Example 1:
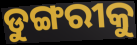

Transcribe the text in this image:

ଡୁଙ୍ଗରୀକୁ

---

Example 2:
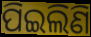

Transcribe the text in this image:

ପିଇଲିଣି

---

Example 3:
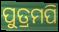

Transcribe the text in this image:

ପୁତ୍ରମପି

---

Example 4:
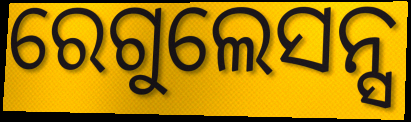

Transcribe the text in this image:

ରେଗୁଲେସନ୍ସ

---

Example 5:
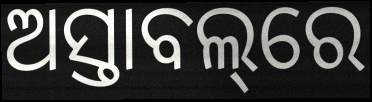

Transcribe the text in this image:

ଅସ୍ତାବଲ୍‌ରେ